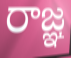
రాజ్ఞ